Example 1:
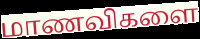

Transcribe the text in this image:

மாணவிகளை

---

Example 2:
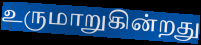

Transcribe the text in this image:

உருமாறுகின்றது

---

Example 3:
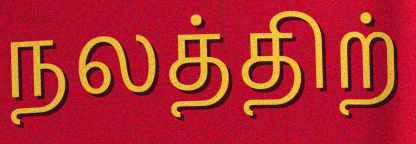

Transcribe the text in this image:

நலத்திற்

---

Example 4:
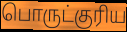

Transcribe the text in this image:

பொருட்குரிய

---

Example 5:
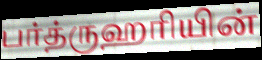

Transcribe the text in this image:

பர்த்ருஹரியின்